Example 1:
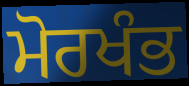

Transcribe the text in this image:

ਮੋਰਖੰਭ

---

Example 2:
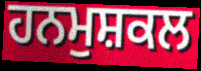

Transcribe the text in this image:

ਹਨਮੁਸ਼ਕਲ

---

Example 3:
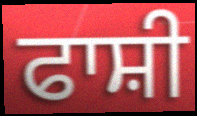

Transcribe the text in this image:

ਫਾਸ਼ੀ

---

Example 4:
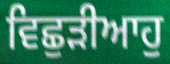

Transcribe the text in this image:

ਵਿਛੁੜੀਆਹੁ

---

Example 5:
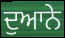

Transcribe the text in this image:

ਦੁਆਨੇ